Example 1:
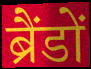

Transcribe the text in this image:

ब्रैंडों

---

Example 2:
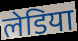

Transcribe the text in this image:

लेडिया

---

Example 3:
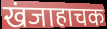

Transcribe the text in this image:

खंजाहाचक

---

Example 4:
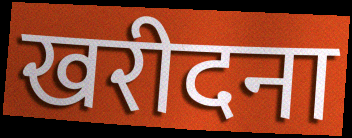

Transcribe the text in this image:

खरीदना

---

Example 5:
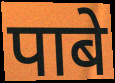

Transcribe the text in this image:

पाबे